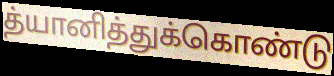
த்யானித்துக்கொண்டு